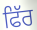
ਫਿੱਰ